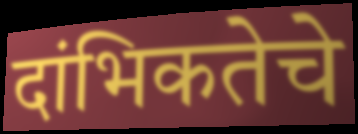
दांभिकतेचे